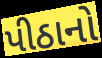
પીઠાનો